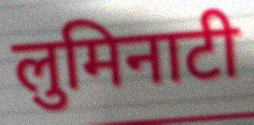
लुमिनाटी